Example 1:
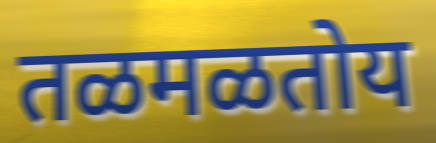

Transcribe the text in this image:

तळमळतोय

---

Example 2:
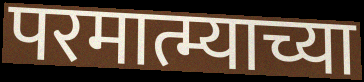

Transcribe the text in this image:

परमात्म्याच्या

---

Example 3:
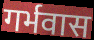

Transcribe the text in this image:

गर्भवास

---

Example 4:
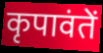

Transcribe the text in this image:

कृपावंतें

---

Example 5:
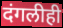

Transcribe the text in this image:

दंगलीही